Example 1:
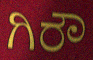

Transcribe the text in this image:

ಗಿರೌ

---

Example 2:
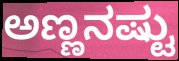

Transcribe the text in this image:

ಅಣ್ಣನಷ್ಟು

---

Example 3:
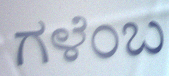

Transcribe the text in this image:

ಗಳೆಂಬ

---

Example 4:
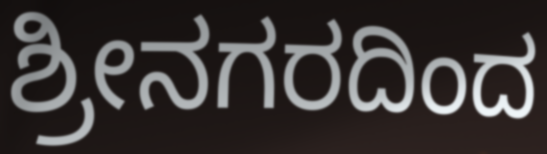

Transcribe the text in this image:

ಶ್ರೀನಗರದಿಂದ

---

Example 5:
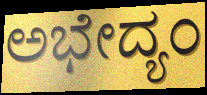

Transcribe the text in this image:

ಅಭೇದ್ಯಂ